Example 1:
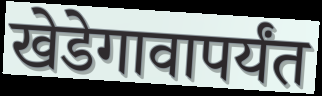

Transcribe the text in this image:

खेडेगावापर्यंत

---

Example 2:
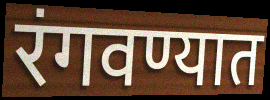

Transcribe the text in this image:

रंगवण्यात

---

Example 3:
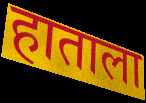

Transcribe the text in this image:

हाताला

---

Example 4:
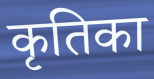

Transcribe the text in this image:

कृतिका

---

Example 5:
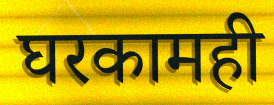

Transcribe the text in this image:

घरकामही